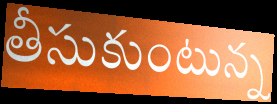
తీసుకుంటున్న